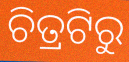
ଚିତ୍ରଟିରୁ